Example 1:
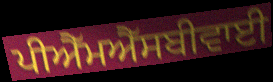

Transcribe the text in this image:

ਪੀਐੱਮਐੱਸਬੀਵਾਈ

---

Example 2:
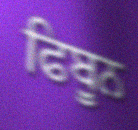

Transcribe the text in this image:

ਫਿਬੂਨ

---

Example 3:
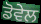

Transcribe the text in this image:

ਡੋਵੇਲ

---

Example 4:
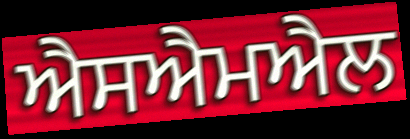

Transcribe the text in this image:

ਐਸਐਮਐਲ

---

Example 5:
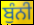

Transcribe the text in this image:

ਬੁੰਨੀ